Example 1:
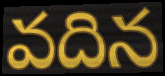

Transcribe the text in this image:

వదిన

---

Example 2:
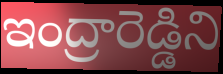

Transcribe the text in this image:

ఇంద్రారెడ్డిని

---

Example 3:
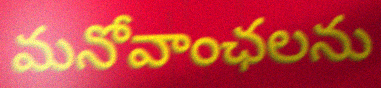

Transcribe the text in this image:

మనోవాంఛలను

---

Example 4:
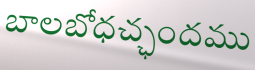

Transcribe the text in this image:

బాలబోధచ్ఛందము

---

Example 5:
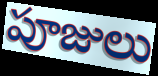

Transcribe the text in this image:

పూజులు